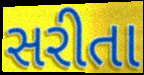
સરીતા